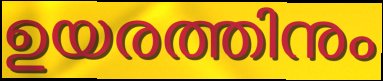
ഉയരത്തിനും